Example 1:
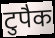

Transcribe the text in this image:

टुपैक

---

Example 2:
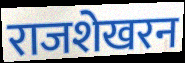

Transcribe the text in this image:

राजशेखरन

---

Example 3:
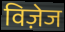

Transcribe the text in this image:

विज़ेज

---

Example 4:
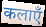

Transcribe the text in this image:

कलाएँ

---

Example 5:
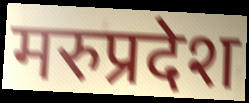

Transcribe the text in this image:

मरुप्रदेश